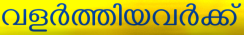
വളർത്തിയവർക്ക്